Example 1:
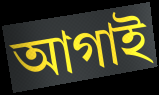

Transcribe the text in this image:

আগাই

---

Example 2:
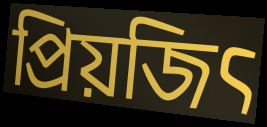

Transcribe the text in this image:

প্রিয়জিৎ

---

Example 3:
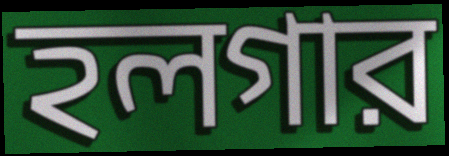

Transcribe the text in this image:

হলগার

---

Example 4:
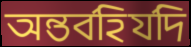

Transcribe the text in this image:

অন্তর্বহির্যদি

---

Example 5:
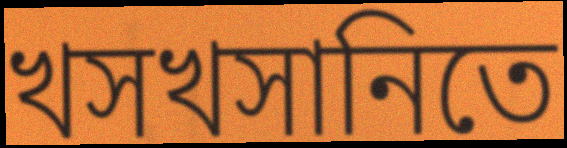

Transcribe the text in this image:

খসখসানিতে